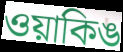
ওয়াকিঙ